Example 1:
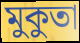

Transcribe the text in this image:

মুকুতা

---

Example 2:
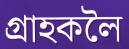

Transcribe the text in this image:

গ্ৰাহকলৈ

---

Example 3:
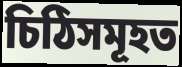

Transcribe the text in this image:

চিঠিসমূহত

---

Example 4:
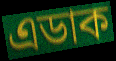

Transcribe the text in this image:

এডাক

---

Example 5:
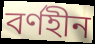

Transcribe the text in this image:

বৰ্ণহীন